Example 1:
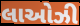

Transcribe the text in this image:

લાઓઝી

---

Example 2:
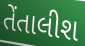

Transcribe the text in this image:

તેંતાલીશ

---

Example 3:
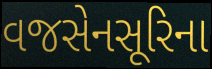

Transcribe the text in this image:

વજસેનસૂરિના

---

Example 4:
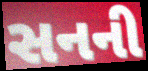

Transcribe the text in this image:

સનની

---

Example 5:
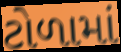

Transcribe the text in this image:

ટોળામાં